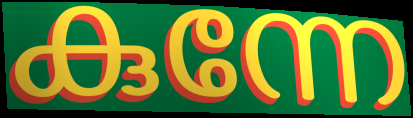
കുന്നേ